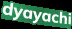
dyayachi